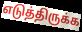
எடுத்திருக்க